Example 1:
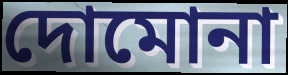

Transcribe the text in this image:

দোমোনা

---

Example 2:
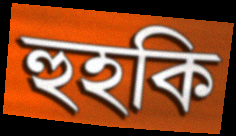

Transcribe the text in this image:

হুহকি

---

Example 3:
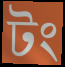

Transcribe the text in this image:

টং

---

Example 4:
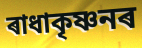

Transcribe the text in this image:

ৰাধাকৃষ্ণনৰ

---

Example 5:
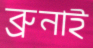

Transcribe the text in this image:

ব্ৰুনাই